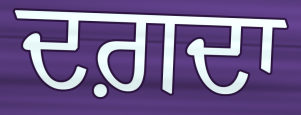
ਦਗ਼ਦਾ